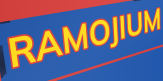
RAMOJIUM